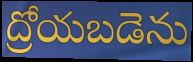
ద్రోయబడెను